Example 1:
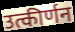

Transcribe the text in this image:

उत्कीर्णन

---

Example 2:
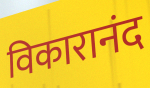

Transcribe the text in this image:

विकारानंद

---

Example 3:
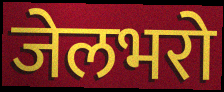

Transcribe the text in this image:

जेलभरो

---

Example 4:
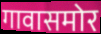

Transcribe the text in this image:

गावासमोर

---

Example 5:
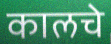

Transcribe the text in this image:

कालचे